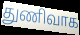
துணிவாக